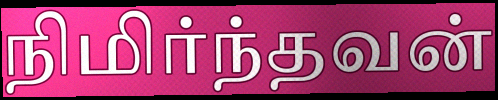
நிமிர்ந்தவன்